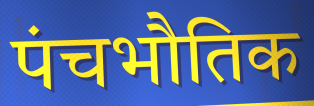
पंचभौतिक